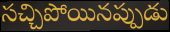
సచ్చిపోయినప్పుడు